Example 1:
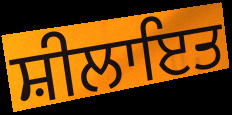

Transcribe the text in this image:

ਸ਼ੀਲਾਇਤ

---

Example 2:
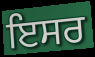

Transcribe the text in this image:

ਇਸਰ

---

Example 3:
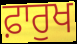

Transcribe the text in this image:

ਫ਼ਾਰੁਖ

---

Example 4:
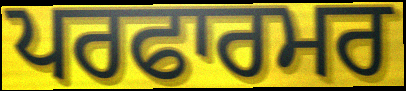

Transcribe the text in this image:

ਪਰਫਾਰਮਰ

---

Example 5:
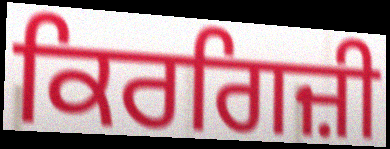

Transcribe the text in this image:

ਕਿਰਗਿਜ਼ੀ